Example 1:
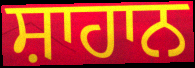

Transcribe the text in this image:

ਸ਼ਾਹਾਨ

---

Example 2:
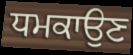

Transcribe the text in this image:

ਧਮਕਾਉਣ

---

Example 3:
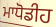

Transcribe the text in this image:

ਮਾਧੋਡੀਹ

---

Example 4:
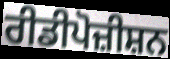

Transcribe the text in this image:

ਰੀਡੀਪੋਜ਼ੀਸ਼ਨ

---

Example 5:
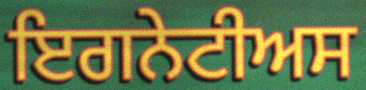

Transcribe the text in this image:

ਇਗਨੇਟੀਅਸ